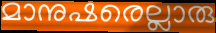
മാനുഷരെല്ലാരു